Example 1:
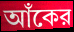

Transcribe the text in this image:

আঁকের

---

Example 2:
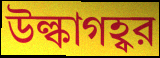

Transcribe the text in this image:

উল্কাগহ্বর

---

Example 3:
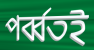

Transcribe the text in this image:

পর্ব্বতই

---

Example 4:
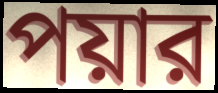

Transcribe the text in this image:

পয়ার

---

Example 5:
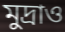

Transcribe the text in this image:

মুদ্রাও